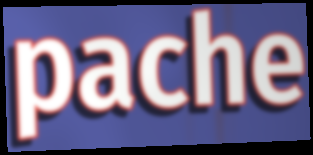
pache